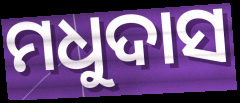
ମଧୁଦାସ